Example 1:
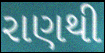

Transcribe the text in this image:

રાણથી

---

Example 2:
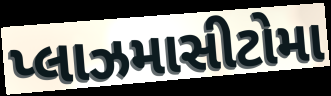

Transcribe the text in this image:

પ્લાઝમાસીટોમા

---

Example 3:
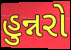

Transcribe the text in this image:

હુન્નરો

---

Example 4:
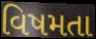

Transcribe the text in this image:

વિષમતા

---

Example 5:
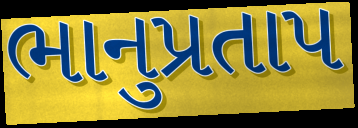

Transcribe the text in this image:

ભાનુપ્રતાપ